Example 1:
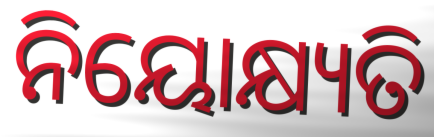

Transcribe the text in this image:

ନିୟୋକ୍ଷ୍ୟତି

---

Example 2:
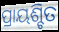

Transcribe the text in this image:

ପ୍ରାୟଶ୍ଚିତ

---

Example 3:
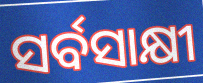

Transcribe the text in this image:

ସର୍ବସାକ୍ଷୀ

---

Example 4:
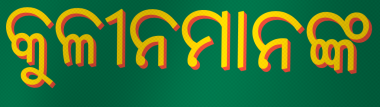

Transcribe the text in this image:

କୁଳୀନମାନଙ୍କ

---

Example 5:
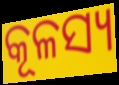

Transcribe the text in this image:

କୂଳସ୍ଯ